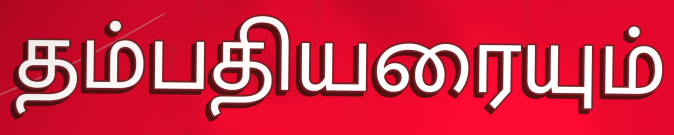
தம்பதியரையும்